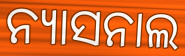
ନ୍ୟାସନାଲ